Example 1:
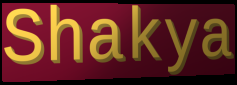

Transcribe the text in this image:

Shakya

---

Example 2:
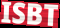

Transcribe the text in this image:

ISBT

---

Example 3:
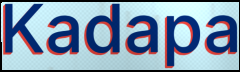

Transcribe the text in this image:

Kadapa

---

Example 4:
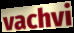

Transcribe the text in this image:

vachvi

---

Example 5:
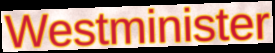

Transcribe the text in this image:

Westminister